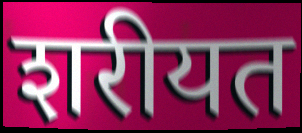
शरीयत